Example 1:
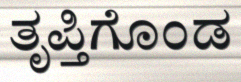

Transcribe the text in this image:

ತೃಪ್ತಿಗೊಂಡ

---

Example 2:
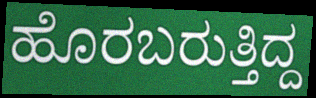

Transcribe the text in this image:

ಹೊರಬರುತ್ತಿದ್ದ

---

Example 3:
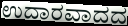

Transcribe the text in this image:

ಉದಾರವಾದದ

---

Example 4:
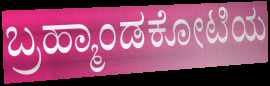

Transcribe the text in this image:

ಬ್ರಹ್ಮಾಂಡಕೋಟಿಯ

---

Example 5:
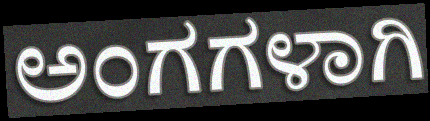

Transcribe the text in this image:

ಅಂಗಗಳಾಗಿ